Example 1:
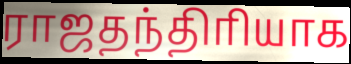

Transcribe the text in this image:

ராஜதந்திரியாக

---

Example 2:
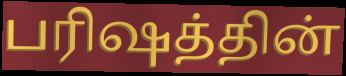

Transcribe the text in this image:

பரிஷத்தின்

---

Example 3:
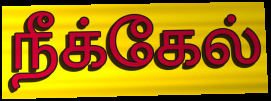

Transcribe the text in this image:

நீக்கேல்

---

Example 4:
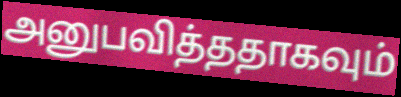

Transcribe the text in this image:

அனுபவித்ததாகவும்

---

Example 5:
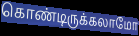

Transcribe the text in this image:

கொண்டிருக்கலாமோ